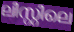
ലിസ്റ്റിലെ